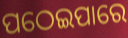
ପଠେଇପାରେ